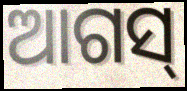
ଆଗସ୍